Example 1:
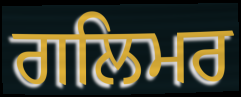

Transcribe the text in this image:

ਗਲਿਮਰ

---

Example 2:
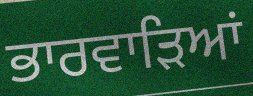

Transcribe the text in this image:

ਭਾਰਵਾੜਿਆਂ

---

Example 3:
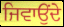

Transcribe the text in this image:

ਜਿਵਾਉਂਦੇ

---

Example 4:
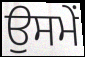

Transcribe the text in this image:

ਉਸਮੇਂ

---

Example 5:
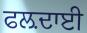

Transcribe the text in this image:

ਫਲ਼ਦਾਈ